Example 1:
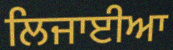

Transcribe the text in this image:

ਲਿਜਾਈਆ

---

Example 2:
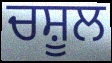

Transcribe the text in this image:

ਚਸ਼ੂਲ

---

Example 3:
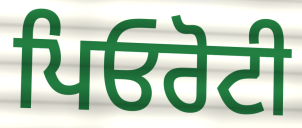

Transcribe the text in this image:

ਪਿਓਰੋਟੀ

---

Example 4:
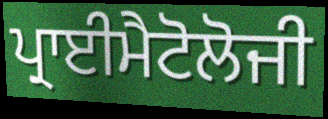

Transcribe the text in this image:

ਪ੍ਰਾਈਮੈਟੋਲੋਜੀ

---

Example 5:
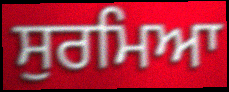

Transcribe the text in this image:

ਸੁਰਮਿਆ